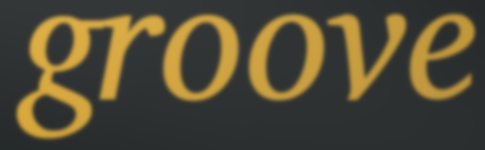
groove